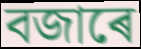
বজাৰে